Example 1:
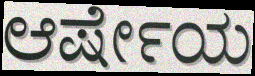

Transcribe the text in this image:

ಆರ್ಷೇಯ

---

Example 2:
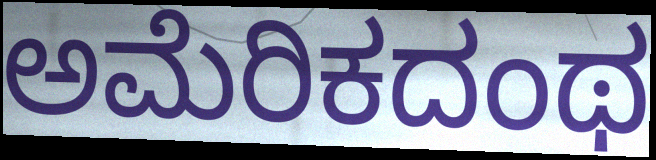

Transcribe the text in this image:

ಅಮೆರಿಕದಂಥ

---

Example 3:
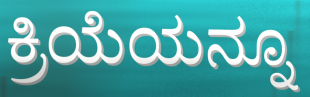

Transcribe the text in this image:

ಕ್ರಿಯೆಯನ್ನೂ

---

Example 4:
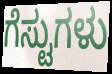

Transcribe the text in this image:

ಗೆಸ್ಟುಗಳು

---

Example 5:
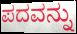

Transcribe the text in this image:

ಪದವನ್ನು